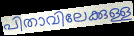
പിതാവിലേക്കുള്ള